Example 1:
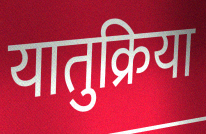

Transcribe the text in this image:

यातुक्रिया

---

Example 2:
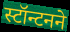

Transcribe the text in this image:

स्टॉन्टनने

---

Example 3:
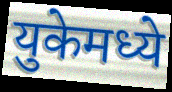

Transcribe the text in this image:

युकेमध्ये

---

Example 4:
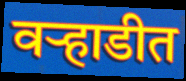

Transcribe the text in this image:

वऱ्हाडीत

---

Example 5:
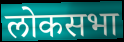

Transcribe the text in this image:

लोकसभा